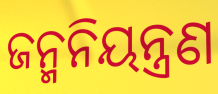
ଜନ୍ମନିୟନ୍ତ୍ରଣ